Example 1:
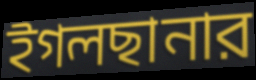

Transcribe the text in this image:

ইগলছানার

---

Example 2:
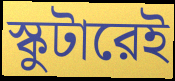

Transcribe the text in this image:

স্কুটারেই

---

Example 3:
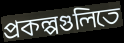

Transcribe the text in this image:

প্রকল্পগুলিতে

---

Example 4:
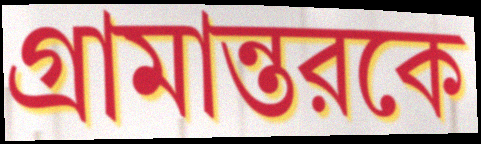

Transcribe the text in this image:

গ্রামান্তরকে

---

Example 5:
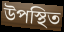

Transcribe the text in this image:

উপস্থিত